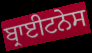
ਬ੍ਰਾਈਟਨੇਸ